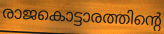
രാജകൊട്ടാരത്തിന്റെ